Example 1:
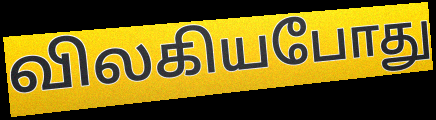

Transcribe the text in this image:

விலகியபோது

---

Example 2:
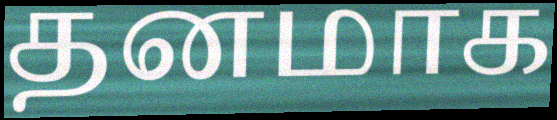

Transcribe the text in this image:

தனமாக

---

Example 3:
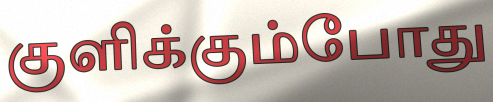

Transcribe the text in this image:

குளிக்கும்போது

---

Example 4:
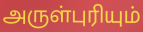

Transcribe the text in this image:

அருள்புரியும்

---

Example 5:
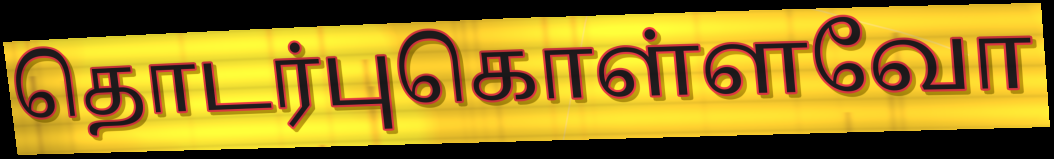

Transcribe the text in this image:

தொடர்புகொள்ளவோ